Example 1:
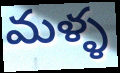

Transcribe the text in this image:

మళ్ళ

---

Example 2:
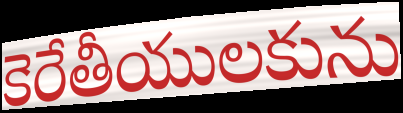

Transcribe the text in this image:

కెరేతీయులకును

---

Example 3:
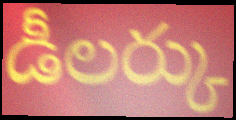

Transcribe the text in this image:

డీలర్కు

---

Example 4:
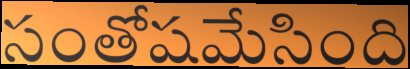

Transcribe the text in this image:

సంతోషమేసింది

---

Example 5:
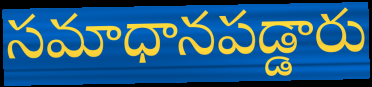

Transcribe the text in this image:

సమాధానపడ్డారు